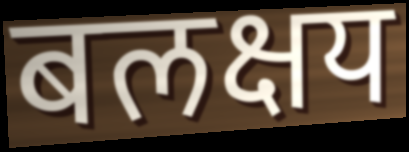
बलक्षय